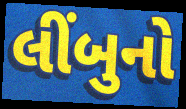
લીંબુનો